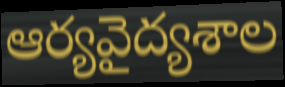
ఆర్యవైద్యశాల